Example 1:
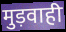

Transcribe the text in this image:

मुड़वाही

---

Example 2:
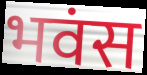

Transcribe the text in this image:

भवंस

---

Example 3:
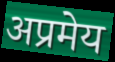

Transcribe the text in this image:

अप्रमेय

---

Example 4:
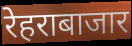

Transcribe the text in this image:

रेहराबाजार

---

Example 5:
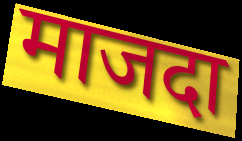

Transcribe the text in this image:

माजदा